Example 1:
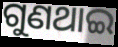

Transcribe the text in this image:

ଗୁଣଥାଇ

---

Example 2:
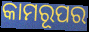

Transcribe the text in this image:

କାମରୂପର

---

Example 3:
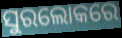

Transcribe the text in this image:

ସୁରଲୋକରେ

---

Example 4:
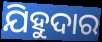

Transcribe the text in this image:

ଯିହୁଦାର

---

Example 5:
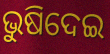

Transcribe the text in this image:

ଭୁଷିଦେଇ